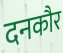
दनकौर